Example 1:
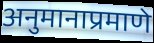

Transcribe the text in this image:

अनुमानाप्रमाणे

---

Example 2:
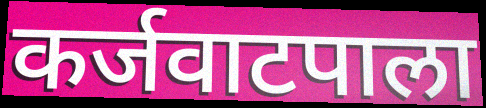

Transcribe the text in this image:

कर्जवाटपाला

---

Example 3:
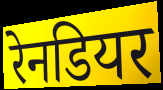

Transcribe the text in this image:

रेनडियर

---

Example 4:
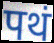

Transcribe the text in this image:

पथं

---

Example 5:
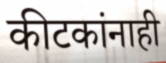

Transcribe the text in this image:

कीटकांनाही